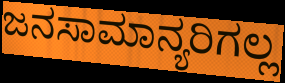
ಜನಸಾಮಾನ್ಯರಿಗಲ್ಲ